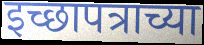
इच्छापत्राच्या